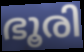
ഭൂരി